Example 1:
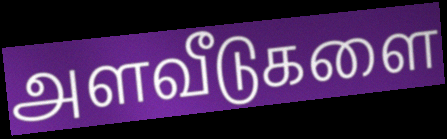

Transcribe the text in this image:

அளவீடுகளை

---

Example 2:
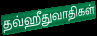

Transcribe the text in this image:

தவ்ஹீதுவாதிகள்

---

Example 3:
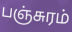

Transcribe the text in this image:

பஞ்சுரம்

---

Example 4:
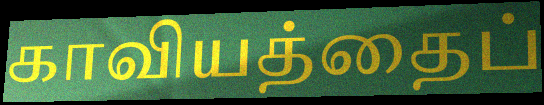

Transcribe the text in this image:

காவியத்தைப்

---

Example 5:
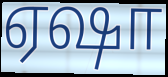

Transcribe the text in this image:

ஏஷா